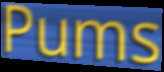
Pums